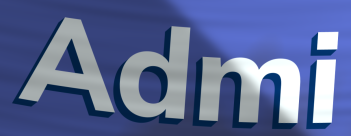
Admi